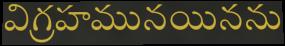
విగ్రహమునయినను